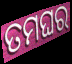
ତମଘର